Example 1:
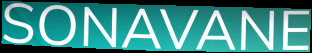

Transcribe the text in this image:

SONAVANE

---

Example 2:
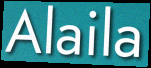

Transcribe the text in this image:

Alaila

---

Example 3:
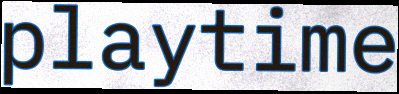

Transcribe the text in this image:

playtime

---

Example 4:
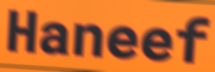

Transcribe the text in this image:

Haneef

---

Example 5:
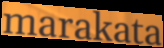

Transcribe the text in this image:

marakata